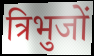
त्रिभुजों